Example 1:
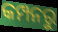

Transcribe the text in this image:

କମ୍ପନରୁ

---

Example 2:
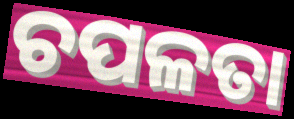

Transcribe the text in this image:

ଚପଳତା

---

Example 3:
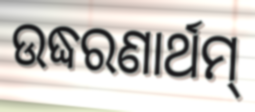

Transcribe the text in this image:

ଉଦ୍ଧରଣାର୍ଥମ୍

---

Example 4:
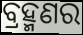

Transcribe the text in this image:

ବ୍ରହ୍ମଣର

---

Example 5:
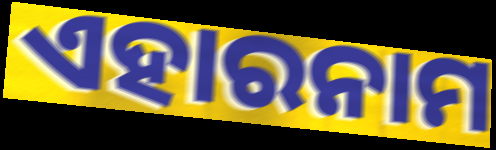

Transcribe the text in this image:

ଏହାରନାମ